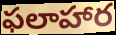
ఫలాహార